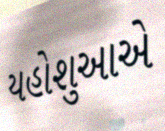
યહોશુઆએ